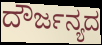
ದೌರ್ಜನ್ಯದ